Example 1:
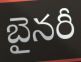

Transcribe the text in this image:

బైనరీ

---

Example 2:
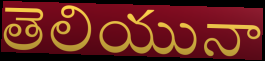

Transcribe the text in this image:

తెలియునా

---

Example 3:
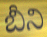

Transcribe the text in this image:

బీని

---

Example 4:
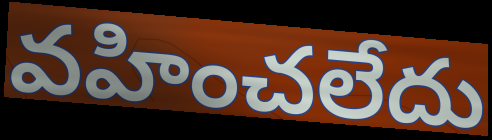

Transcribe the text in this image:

వహించలేదు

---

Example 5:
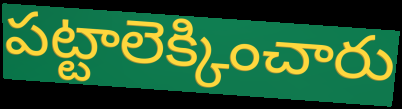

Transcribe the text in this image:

పట్టాలెక్కించారు